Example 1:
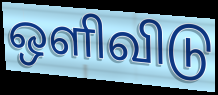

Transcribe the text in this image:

ஒளிவிடு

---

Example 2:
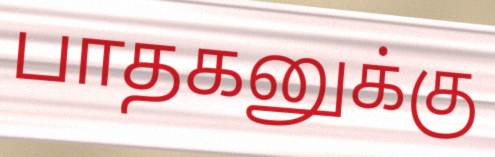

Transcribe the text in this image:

பாதகனுக்கு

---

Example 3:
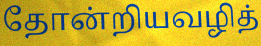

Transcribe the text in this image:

தோன்றியவழித்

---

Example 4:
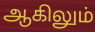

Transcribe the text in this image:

ஆகிலும்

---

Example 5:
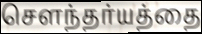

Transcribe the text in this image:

செளந்தர்யத்தை